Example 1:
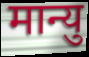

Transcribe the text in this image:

मान्यु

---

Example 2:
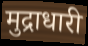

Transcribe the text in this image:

मुद्राधारी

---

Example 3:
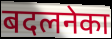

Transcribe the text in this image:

बदलनेका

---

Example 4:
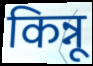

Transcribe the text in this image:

किन्नू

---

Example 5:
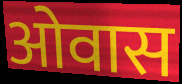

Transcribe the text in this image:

ओवास